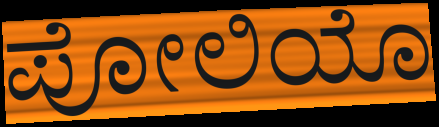
ಪೋಲಿಯೊ